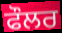
ਫੌਲਰ